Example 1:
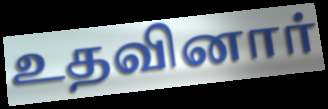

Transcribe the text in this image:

உதவினார்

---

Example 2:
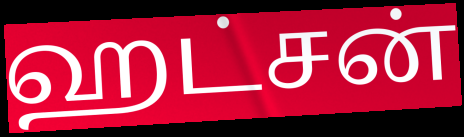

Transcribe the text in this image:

ஹட்சன்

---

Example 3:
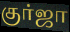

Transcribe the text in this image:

குர்ஜா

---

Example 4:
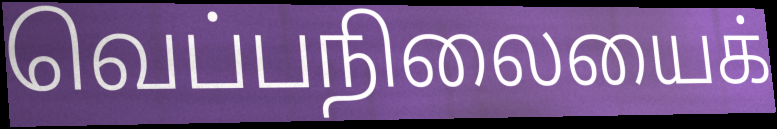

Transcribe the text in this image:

வெப்பநிலையைக்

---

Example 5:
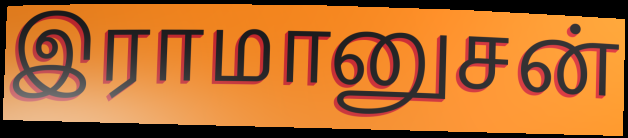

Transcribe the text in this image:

இராமானுசன்